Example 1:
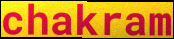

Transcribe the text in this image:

chakram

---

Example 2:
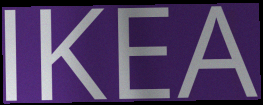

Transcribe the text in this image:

IKEA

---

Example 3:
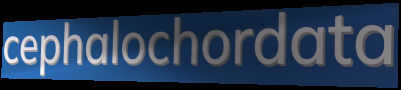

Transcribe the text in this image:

cephalochordata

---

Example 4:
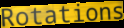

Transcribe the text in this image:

Rotations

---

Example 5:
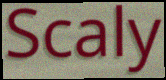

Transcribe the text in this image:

Scaly